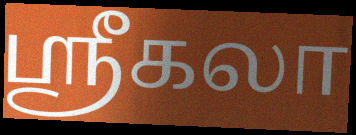
ஶ்ரீகலா